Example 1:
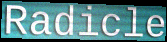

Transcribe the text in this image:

Radicle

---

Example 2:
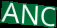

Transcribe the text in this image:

ANC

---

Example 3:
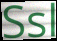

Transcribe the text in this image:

Ssl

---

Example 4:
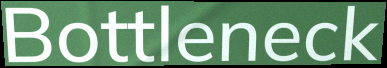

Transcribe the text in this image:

Bottleneck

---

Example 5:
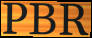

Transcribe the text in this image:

PBR